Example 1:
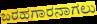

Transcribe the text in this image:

ಬರಹಗಾರನಾಗಲು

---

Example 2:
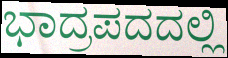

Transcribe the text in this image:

ಭಾದ್ರಪದದಲ್ಲಿ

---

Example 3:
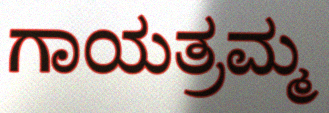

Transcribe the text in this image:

ಗಾಯತ್ರಮ್ಮ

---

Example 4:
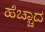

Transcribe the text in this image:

ಹೆಚ್ಚಾದ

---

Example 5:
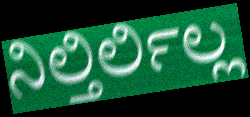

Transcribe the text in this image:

ನಿಲ್ತಿರ್ಲಿಲ್ಲ